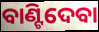
ବାଣ୍ଟିଦେବା